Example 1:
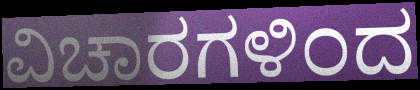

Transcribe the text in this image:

ವಿಚಾರಗಳಿಂದ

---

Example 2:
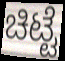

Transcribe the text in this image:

ಚಿಟ್ಟೆ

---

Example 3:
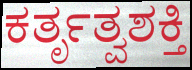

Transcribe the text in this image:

ಕರ್ತೃತ್ವಶಕ್ತಿ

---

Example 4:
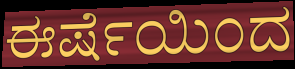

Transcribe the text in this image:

ಈರ್ಷೆಯಿಂದ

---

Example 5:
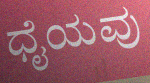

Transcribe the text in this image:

ಧೈಯವು